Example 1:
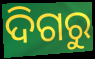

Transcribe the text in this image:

ଦିଗରୁ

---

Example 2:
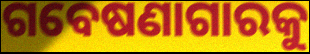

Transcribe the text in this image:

ଗବେଷଣାଗାରକୁ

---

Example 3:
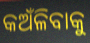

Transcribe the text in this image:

କଅଁଳିବାକୁ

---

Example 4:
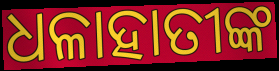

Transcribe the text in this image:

ଧଳାହାତୀଙ୍କ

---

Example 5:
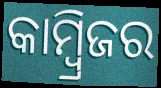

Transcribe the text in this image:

କାମ୍ବ୍ରିଜର